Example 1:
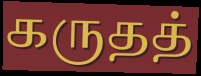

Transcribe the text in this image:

கருதத்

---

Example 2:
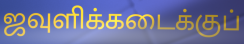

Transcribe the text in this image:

ஜவுளிக்கடைக்குப்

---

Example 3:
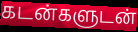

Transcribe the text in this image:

கடன்களுடன்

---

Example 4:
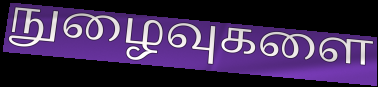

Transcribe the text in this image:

நுழைவுகளை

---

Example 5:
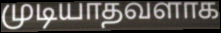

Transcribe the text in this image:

முடியாதவளாக